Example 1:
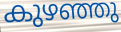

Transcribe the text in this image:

കുഴഞ്ഞു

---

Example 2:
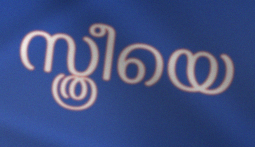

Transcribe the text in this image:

സ്ത്രീയെ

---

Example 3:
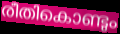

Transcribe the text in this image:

രീതികൊണ്ടും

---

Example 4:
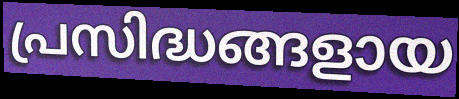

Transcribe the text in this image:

പ്രസിദ്ധങ്ങളായ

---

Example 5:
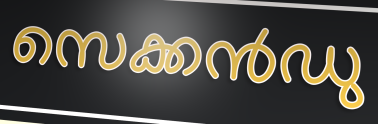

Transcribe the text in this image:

സെക്കൻഡു